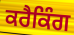
ਕਰੈਕਿੰਗ